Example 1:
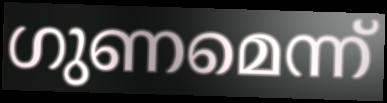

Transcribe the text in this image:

ഗുണമെന്ന്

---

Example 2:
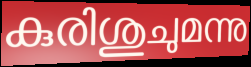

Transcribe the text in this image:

കുരിശുചുമന്നു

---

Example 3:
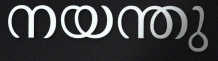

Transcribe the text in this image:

നയന്തു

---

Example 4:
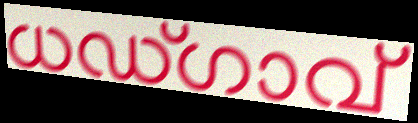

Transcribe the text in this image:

ധഡ്ഗാവ്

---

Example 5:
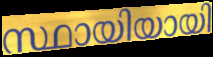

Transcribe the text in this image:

സ്ഥായിയായി